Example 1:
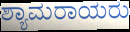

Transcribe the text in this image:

ಶ್ಯಾಮರಾಯರು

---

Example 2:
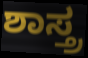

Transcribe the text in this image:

ಶಾಸ್ತ್ರ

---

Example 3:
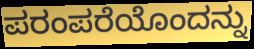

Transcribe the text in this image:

ಪರಂಪರೆಯೊಂದನ್ನು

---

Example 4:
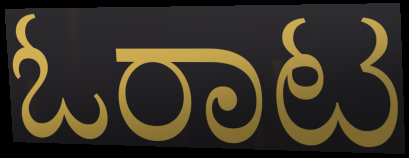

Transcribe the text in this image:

ಓರಾಟ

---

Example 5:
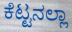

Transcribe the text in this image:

ಕೆಟ್ಟನಲ್ಲಾ